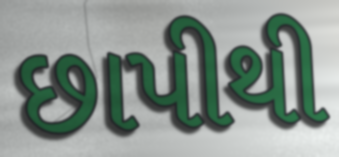
છાપીથી